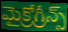
మైక్రోగ్రీన్స్